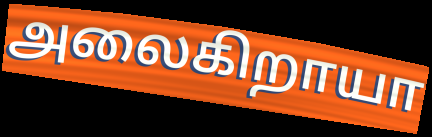
அலைகிறாயா